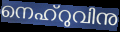
നെഹ്റുവിനു